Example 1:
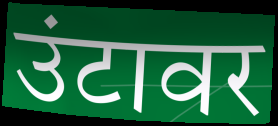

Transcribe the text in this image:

उंटावर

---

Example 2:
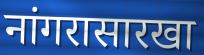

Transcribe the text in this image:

नांगरासारखा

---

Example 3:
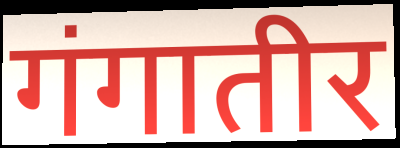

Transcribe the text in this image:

गंगातीर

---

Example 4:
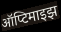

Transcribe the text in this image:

ऑप्टिमाइझ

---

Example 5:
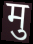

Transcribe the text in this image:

मु